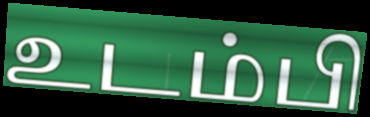
உடம்பி